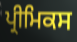
ਪ੍ਰੀਮਿਕਸ